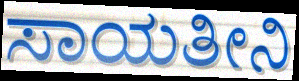
ಸಾಯತೀನಿ